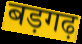
बड़गढ़